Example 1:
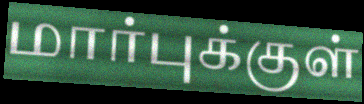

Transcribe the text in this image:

மார்புக்குள்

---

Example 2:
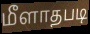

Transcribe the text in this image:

மீளாதபடி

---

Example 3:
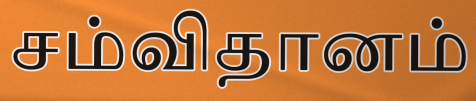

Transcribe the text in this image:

சம்விதானம்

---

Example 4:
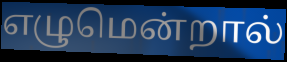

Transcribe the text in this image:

எழுமென்றால்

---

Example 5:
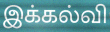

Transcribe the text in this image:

இக்கல்வி